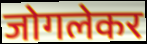
जोगलेकर